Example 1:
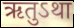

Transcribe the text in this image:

ऋतुऽथा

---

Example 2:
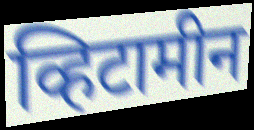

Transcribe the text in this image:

व्हिटामीन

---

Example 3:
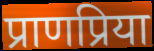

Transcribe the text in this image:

प्राणप्रिया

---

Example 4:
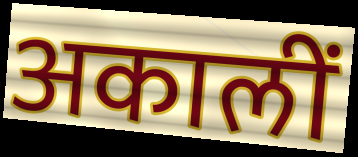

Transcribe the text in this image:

अकालीं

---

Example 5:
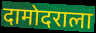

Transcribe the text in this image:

दामोदराला